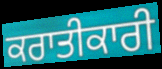
ਕਰਾਤੀਕਾਰੀ